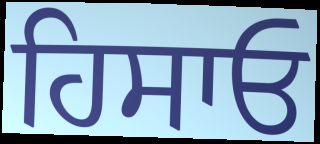
ਹਿਸਾਓ